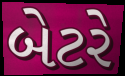
બેટરે